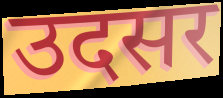
उदसर